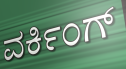
ವರ್ಕಿಂಗ್